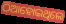
ଠିଆହୋଇଥିଲେ